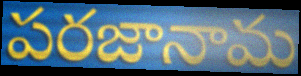
పరజానామ